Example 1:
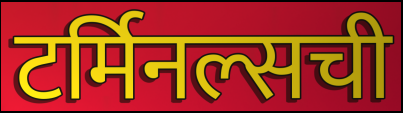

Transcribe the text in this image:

टर्मिनल्सची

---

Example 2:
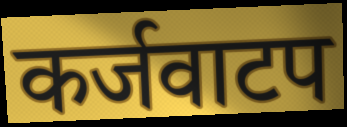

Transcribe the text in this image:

कर्जवाटप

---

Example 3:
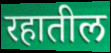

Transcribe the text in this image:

रहातील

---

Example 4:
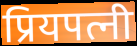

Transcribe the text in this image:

प्रियपत्नी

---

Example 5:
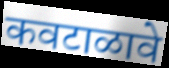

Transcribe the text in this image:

कवटाळावे